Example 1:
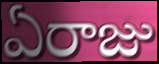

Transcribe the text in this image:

ఏరాజు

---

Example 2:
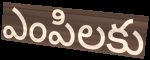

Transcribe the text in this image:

ఎంపిలకు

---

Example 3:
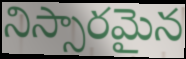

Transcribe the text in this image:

నిస్సారమైన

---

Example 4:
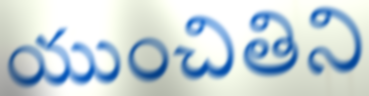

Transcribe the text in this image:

యుంచితిని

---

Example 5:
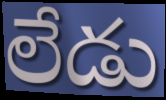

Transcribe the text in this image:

లేడు